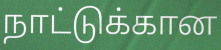
நாட்டுக்கான